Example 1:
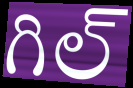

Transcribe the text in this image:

గిల్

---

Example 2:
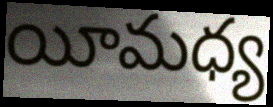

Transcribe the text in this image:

యీమధ్య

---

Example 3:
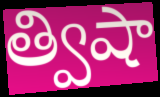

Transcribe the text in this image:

త్విషా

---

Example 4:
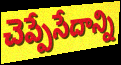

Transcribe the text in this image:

చెప్పేసేదాన్ని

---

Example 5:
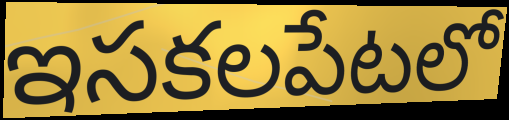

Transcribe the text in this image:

ఇసకలపేటలో